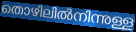
തൊഴിലിൽനിന്നുള്ള